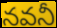
నవనీ